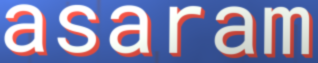
asaram